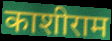
काशीराम